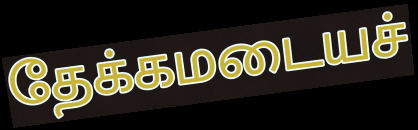
தேக்கமடையச்